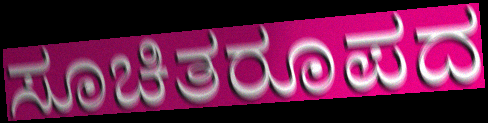
ಸೂಚಿತರೂಪದ